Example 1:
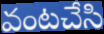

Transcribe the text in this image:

వంటచేసి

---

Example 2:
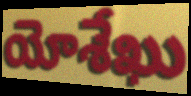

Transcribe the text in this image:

యోశేఖు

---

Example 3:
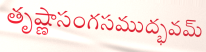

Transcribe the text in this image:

తృష్ణాసంగసముద్భవమ్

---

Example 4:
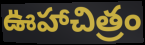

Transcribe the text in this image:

ఊహాచిత్రం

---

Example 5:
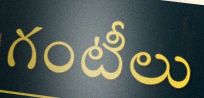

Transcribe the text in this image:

గంటీలు